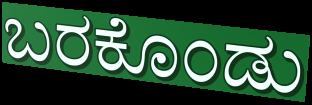
ಬರಕೊಂಡು